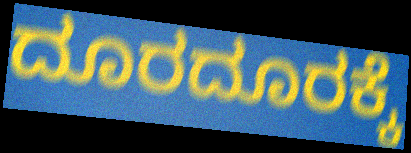
ದೂರದೂರಕ್ಕೆ